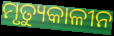
ମୃତ୍ୟୁକାଳୀନ